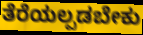
ತೆರೆಯಲ್ಪಡಬೇಕು